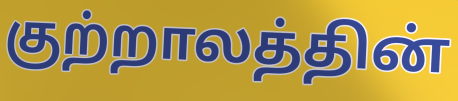
குற்றாலத்தின்